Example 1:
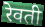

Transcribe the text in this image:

रेवती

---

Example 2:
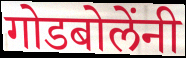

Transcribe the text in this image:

गोडबोलेंनी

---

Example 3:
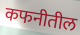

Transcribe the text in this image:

कफनीतील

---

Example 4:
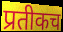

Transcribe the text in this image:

प्रतीकच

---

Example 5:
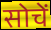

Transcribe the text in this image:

सोचें